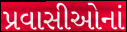
પ્રવાસીઓનાં